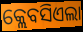
କ୍ଲେବସିଏଲା